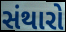
સંથારો